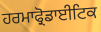
ਹਰਮਾਫ੍ਰੋਡਾਈਟਿਕ